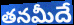
తనమీదే